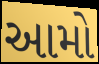
આમો